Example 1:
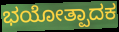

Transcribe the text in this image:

ಭಯೋತ್ಪಾದಕ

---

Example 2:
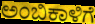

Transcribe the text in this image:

ಅಂಬಿಕಾಳಿಗೆ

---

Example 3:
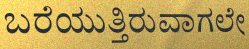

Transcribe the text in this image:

ಬರೆಯುತ್ತಿರುವಾಗಲೇ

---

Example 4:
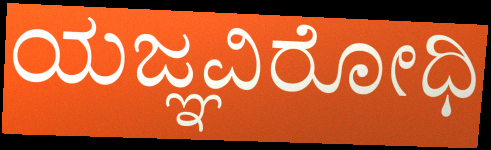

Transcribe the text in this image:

ಯಜ್ಞವಿರೋಧಿ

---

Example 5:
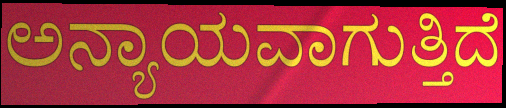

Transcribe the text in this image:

ಅನ್ಯಾಯವಾಗುತ್ತಿದೆ